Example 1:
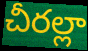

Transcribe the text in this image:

చీరల్లా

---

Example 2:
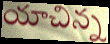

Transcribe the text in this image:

యాచిన్న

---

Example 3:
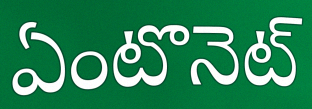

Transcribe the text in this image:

ఏంటొనెట్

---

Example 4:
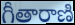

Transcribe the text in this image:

గీతారాణి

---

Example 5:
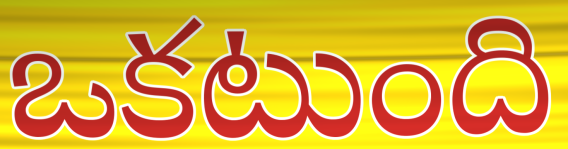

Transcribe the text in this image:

ఒకటుంది